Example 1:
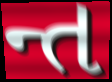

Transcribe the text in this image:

ન્ત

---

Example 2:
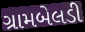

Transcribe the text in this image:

ગ્રામબેલડી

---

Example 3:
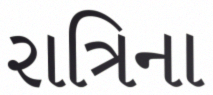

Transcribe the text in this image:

રાત્રિના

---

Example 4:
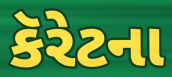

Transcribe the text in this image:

કૅરેટના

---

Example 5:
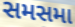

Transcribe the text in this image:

સમસમા